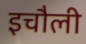
इचौली